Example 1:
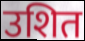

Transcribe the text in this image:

उशित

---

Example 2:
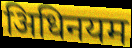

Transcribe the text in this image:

अिधिनयम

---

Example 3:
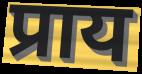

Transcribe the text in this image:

प्राय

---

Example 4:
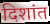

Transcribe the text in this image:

दिशांत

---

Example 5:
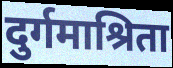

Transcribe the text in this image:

दुर्गमाश्रिता